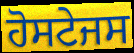
ਹੋਸਟੇਜਸ